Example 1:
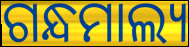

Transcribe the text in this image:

ଗନ୍ଧମାଲ୍ୟ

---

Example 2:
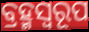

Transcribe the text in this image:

ବ୍ରହ୍ମସ୍ୱରୂପ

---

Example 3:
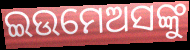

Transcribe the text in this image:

ଇଉମେଅସଙ୍କୁ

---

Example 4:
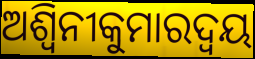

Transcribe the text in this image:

ଅଶ୍ୱିନୀକୁମାରଦ୍ୱୟ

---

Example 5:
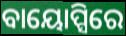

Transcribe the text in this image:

ବାୟୋପ୍ସିରେ